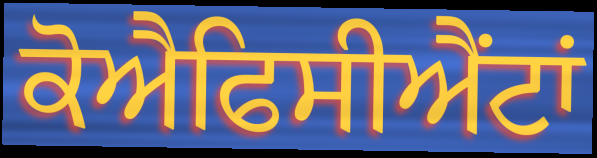
ਕੋਐਫਿਸੀਐਂਟਾਂ